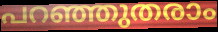
പറഞ്ഞുതരാം